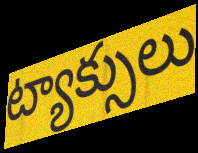
ట్యాక్సులు